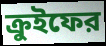
ক্রুইফের